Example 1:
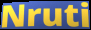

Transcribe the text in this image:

Nruti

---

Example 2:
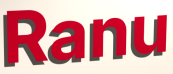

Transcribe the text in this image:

Ranu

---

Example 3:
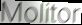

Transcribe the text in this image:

Molitor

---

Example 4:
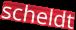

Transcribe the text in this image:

scheldt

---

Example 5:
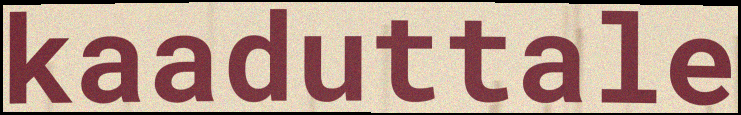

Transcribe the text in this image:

kaaduttale